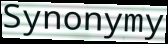
Synonymy